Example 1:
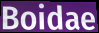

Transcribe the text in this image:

Boidae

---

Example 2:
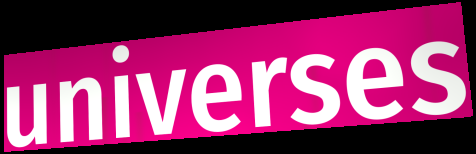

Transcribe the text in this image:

universes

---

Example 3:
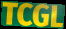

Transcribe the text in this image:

TCGL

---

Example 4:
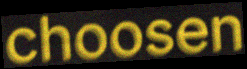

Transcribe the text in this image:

choosen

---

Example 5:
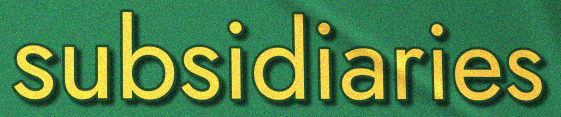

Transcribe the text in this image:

subsidiaries